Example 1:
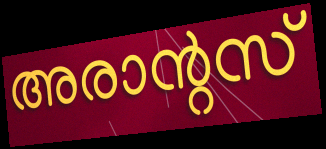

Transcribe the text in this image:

അരാന്റസ്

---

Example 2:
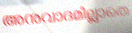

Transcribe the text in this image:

അനുവാദമില്ലാതെ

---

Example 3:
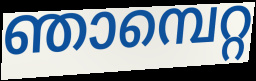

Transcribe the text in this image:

ഞാമ്പെറ്റ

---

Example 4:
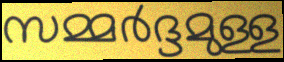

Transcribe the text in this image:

സമ്മർദ്ദമുള്ള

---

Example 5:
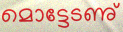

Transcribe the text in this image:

മൊട്ടേടണു്